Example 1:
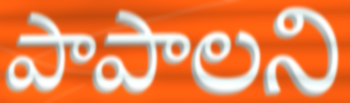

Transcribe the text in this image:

పాపాలని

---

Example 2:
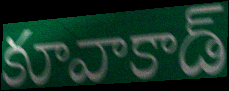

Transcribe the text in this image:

కూవాకాడ్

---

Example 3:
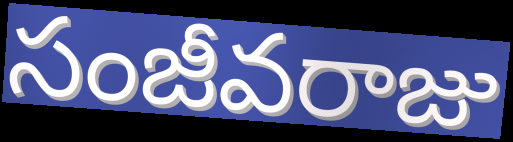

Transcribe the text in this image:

సంజీవరాజు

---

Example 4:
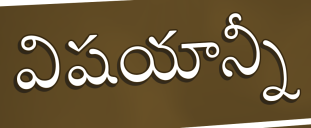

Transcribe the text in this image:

విషయాన్నీ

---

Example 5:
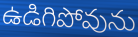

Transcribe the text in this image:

ఉడిగిపోవును